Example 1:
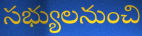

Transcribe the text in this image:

సభ్యులనుంచి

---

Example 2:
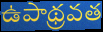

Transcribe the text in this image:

ఉపాథ్రవత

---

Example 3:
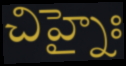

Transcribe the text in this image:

చిహ్నైః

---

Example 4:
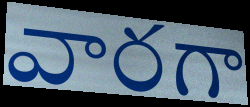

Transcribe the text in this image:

వారగా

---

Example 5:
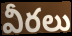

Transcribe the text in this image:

వీరలు